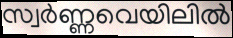
സ്വർണ്ണവെയിലിൽ